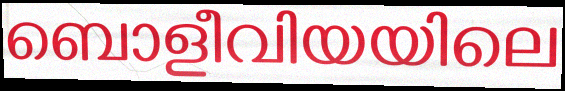
ബൊളീവിയയിലെ